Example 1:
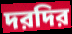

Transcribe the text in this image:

দরদির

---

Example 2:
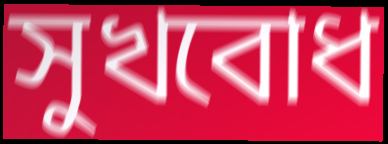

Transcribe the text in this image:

সুখবোধ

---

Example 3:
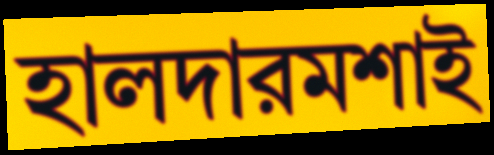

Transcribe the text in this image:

হালদারমশাই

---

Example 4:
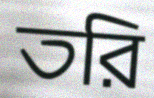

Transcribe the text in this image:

তরি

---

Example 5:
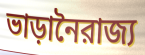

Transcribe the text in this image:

ভাড়ানৈরাজ্য